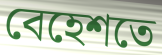
বেহেশতে